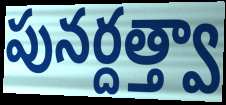
పునర్దత్త్వా